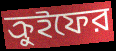
ক্রুইফের